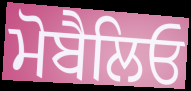
ਮੋਬੈਲਿਓ